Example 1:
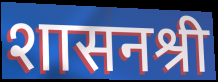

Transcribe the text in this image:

शासनश्री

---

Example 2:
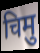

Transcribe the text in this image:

चिमु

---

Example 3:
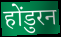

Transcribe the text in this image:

होंडुरन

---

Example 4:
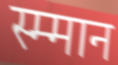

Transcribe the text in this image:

स्म्मान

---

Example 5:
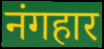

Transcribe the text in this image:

नंगहार